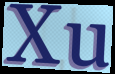
Xu